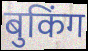
बुकिंग